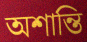
অশান্তি